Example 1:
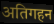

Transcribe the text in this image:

अतिगहन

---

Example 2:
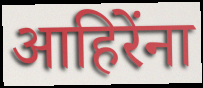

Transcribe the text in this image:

आहिरेंना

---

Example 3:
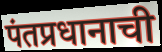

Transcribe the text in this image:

पंतप्रधानाची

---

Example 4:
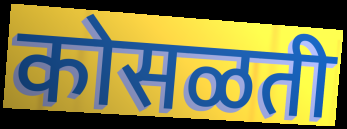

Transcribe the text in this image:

कोसळती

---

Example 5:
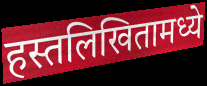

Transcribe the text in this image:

हस्तलिखितामध्ये